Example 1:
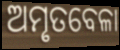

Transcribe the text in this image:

ଅମୃତବେଳା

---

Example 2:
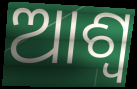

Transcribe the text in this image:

ଆଶ୍ୱ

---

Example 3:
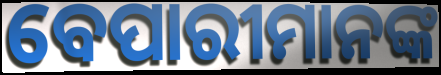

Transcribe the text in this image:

ବେପାରୀମାନଙ୍କ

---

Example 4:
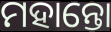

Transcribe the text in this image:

ମହାନ୍ତୋ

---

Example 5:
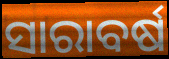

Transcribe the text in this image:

ସାରାବର୍ଷ